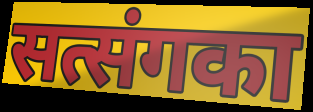
सत्संगका